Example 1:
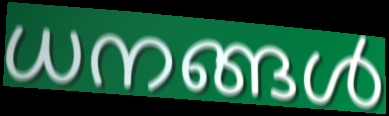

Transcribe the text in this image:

ധനങ്ങൾ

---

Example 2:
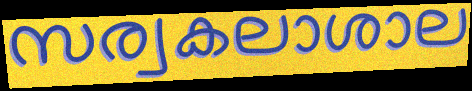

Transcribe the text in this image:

സര്വകലാശാല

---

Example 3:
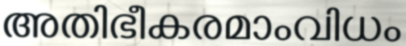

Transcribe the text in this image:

അതിഭീകരമാംവിധം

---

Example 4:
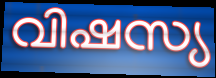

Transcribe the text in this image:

വിഷസ്യ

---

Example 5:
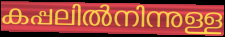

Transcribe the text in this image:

കപ്പലിൽനിന്നുള്ള